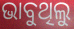
ଭାବୁଥିଲୁ